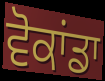
ਵੋਕਾਂਡਾ